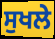
ਸੁਖਲੇ